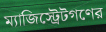
ম্যাজিস্ট্রেটগণের